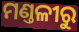
ମଣ୍ତଳୀରୁ